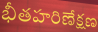
భీతహరిణేక్షణ